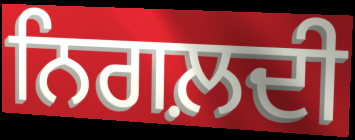
ਨਿਗਲ਼ਦੀ